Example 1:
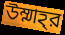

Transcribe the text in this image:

উম্মাহ্‌র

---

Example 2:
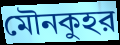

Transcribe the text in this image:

মৌনকুহর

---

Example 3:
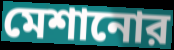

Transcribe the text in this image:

মেশানোর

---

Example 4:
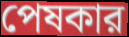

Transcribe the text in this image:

পেষকার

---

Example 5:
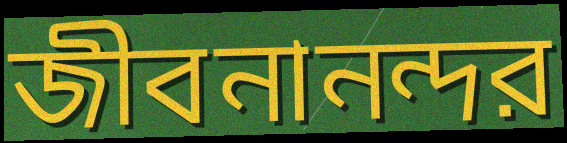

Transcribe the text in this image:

জীবনানন্দর